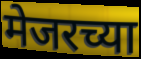
मेजरच्या